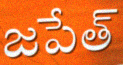
జపేత్